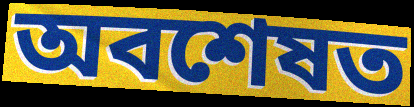
অবশেষত